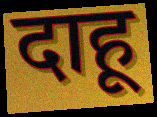
दाहू